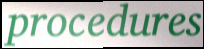
procedures